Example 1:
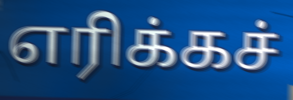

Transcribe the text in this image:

எரிக்கச்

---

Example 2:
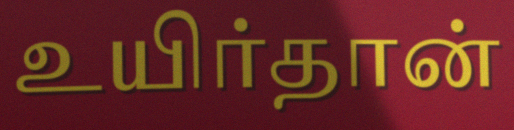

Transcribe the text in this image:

உயிர்தான்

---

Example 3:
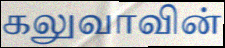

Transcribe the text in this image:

கலுவாவின்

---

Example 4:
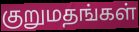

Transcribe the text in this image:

குறுமதங்கள்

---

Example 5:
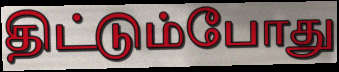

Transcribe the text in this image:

திட்டும்போது